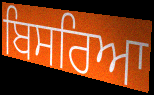
ਬਿਸਰਿਆ